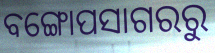
ବଙ୍ଗୋପସାଗରରୁ